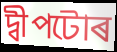
দ্বীপটোৰ